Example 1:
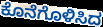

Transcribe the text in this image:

ಕೊನೆಗೊಳಿಸಿದ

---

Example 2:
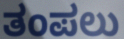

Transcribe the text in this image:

ತಂಪಲು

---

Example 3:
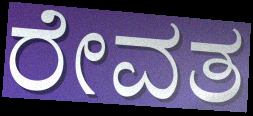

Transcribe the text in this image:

ರೇವತ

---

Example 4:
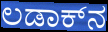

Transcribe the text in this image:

ಲಡಾಕ್‌ನ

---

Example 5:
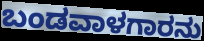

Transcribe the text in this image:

ಬಂಡವಾಳಗಾರನು